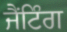
ਜੈਂਟਿੰਗ